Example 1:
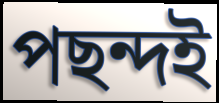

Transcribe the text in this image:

পছন্দই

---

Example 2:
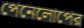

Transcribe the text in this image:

পেনেলোপের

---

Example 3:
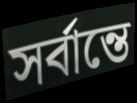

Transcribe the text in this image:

সর্বান্তে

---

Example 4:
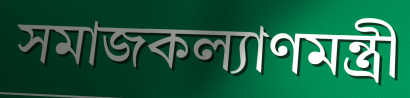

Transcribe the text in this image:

সমাজকল্যাণমন্ত্রী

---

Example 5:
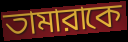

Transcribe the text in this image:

তামারাকে